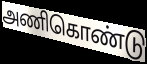
அணிகொண்டு